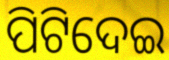
ପିଟିଦେଇ